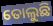
ତୋଲୁଛି